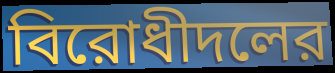
বিরোধীদলের